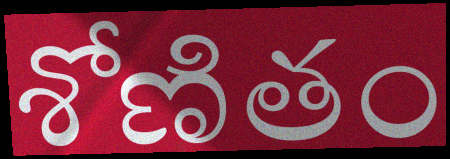
శోణితం